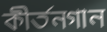
কীর্তনগান